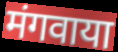
मंगवाया